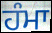
ਹੰਮਾ